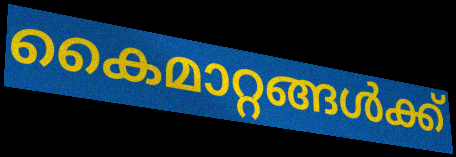
കൈമാറ്റങ്ങൾക്ക്